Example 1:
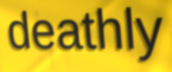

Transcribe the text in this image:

deathly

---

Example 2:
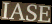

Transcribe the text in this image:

IASE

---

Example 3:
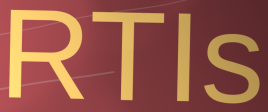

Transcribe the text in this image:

RTIs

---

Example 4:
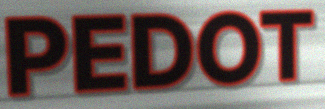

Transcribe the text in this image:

PEDOT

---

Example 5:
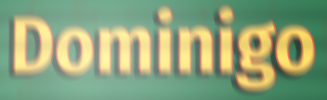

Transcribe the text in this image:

Dominigo